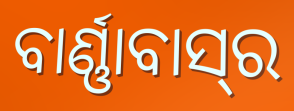
ବାର୍ଣ୍ଣାବାସ୍‌ର